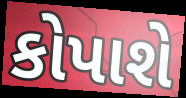
કોપાશે